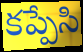
కప్పేసి